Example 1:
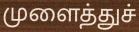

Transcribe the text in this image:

முளைத்துச்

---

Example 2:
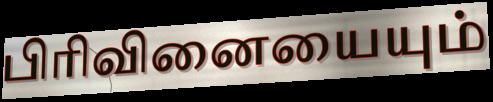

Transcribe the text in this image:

பிரிவினையையும்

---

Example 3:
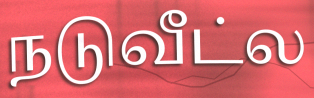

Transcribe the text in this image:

நடுவீட்ல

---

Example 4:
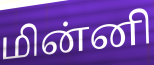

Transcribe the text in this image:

மின்னி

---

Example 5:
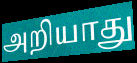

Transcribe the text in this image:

அறியாது